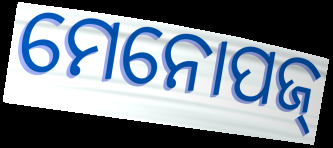
ମେନୋପଜ୍